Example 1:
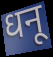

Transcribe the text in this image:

धनू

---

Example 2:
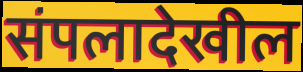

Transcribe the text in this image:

संपलादेखील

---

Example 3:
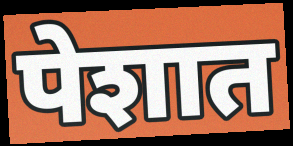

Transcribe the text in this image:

पेशात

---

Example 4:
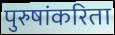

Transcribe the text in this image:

पुरुषांकरिता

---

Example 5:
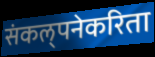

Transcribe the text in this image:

संकल्पनेकरिता